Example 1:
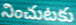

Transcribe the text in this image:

నించుటకు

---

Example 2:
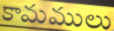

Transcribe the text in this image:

కామములు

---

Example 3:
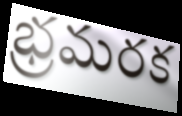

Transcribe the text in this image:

భ్రమరక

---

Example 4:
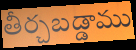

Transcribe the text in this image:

తీర్చబడ్డాము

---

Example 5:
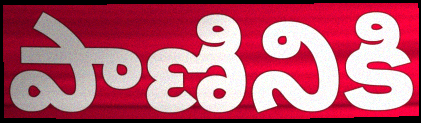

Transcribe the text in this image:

పాణినికి